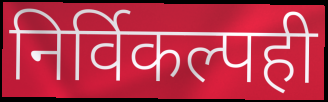
निर्विकल्पही